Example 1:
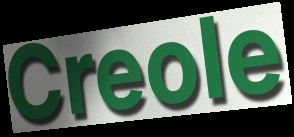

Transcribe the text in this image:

Creole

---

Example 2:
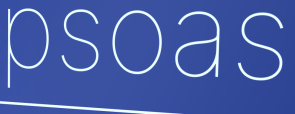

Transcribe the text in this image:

psoas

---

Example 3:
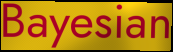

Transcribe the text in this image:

Bayesian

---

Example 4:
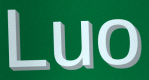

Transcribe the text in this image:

Luo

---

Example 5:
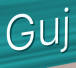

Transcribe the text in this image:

Guj